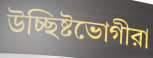
উচ্ছিষ্টভোগীরা